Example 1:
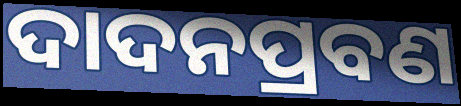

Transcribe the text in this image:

ଦାଦନପ୍ରବଣ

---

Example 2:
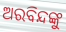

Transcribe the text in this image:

ଅରବିନ୍ଦଙ୍କୁ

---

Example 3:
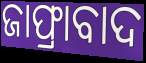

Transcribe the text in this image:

ଜାଫ୍ରାବାଦ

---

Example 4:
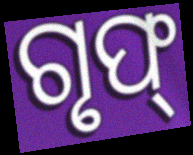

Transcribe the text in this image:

ଗୃଫ୍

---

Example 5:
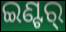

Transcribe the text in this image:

ଇଣ୍ଟର୍